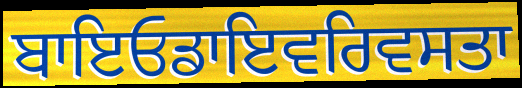
ਬਾਇਓਡਾਇਵਰਿਵਸਤਾ